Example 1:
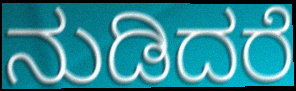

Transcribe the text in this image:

ನುಡಿದರೆ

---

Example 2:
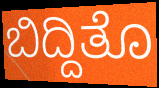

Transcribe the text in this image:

ಬಿದ್ದಿತೊ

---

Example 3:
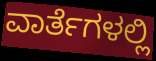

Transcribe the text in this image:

ವಾರ್ತೆಗಳಲ್ಲಿ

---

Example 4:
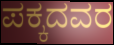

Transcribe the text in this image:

ಪಕ್ಕದವರ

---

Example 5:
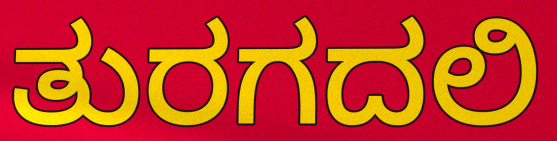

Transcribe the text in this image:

ತುರಗದಲಿ